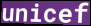
unicef